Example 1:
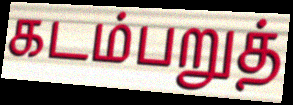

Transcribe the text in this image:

கடம்பறுத்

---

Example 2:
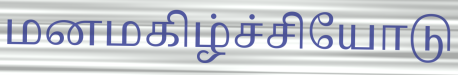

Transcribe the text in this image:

மனமகிழ்ச்சியோடு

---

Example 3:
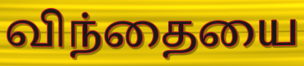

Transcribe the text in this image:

விந்தையை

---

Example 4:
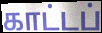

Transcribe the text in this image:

காட்டப்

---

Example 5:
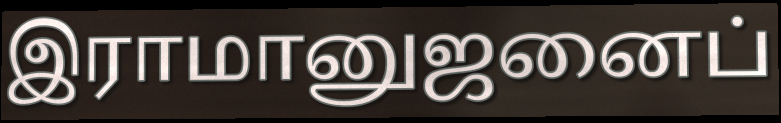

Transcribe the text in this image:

இராமானுஜனைப்